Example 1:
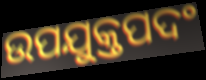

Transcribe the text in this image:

ଉପଯୁକ୍ତପଦଂ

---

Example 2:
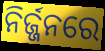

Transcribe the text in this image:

ନିର୍ଜ୍ଜନରେ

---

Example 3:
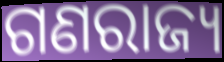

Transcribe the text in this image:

ଗଣରାଜ୍ୟ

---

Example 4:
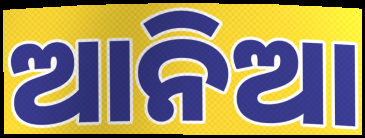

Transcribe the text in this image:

ଆନିଆ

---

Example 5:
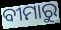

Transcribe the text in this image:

ବୀମାରୁ